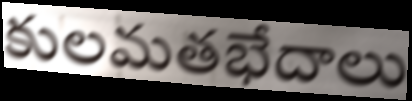
కులమతభేదాలు